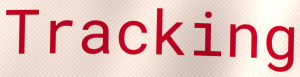
Tracking